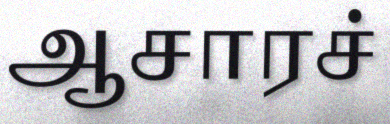
ஆசாரச்